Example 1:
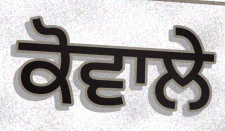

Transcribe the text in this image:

ਕੋਵਾਲੇ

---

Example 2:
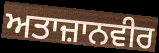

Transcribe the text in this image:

ਅਤਾਜ਼ਾਨਵੀਰ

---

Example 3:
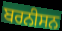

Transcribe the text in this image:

ਬਰਨੀਸਨ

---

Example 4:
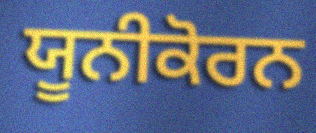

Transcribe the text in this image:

ਯੂਨੀਕੋਰਨ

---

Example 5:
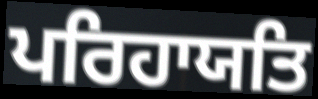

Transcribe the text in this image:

ਪਰਿਹਾਯਤਿ